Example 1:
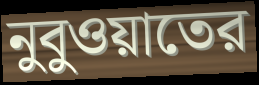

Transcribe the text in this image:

নুবুওয়াতের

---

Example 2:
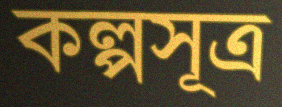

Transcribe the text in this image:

কল্পসূত্র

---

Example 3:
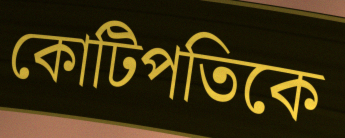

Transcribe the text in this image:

কোটিপতিকে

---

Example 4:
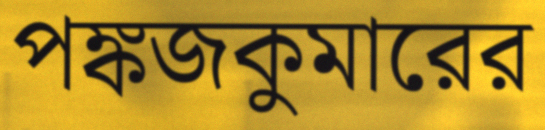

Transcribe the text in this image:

পঙ্কজকুমারের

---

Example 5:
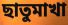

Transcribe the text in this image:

ছাতুমাখা